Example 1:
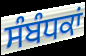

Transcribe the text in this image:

ਸੰਬੰਧਕਾਂ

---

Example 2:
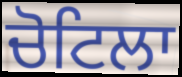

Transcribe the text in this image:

ਚੋਟਿਲਾ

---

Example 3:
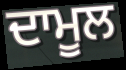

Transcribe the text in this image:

ਦਾਮੂਲ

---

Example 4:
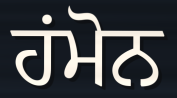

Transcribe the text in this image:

ਹਂਮੋਨ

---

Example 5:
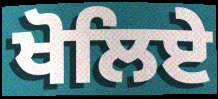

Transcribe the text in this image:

ਖੋਲਿਏ